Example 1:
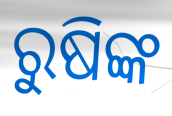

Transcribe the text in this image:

ରୁଷିଙ୍କ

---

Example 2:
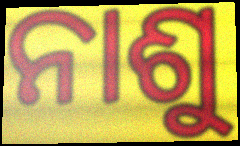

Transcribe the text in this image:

ନାଶୁ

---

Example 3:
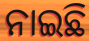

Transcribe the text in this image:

ନାଇଛି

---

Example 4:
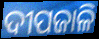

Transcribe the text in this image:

ଦୀପଜାଳି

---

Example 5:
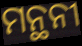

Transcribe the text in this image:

ମନ୍ଥନୀ